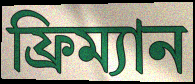
ফ্রিম্যান